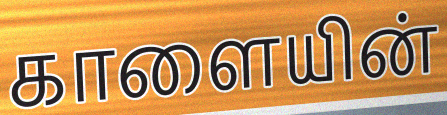
காளையின்